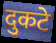
दुकटे